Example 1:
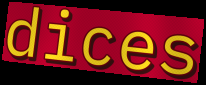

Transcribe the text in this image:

dices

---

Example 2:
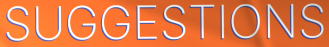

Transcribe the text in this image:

SUGGESTIONS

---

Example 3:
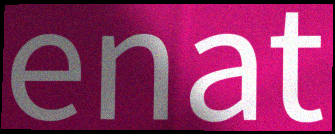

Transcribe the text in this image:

enat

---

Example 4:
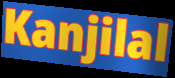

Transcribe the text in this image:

Kanjilal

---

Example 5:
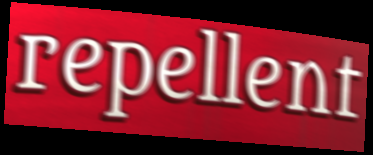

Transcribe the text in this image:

repellent